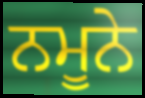
ਨਮੂਨੇ